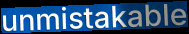
unmistakable